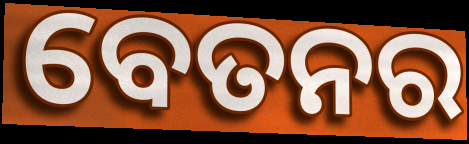
ବେତନର